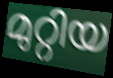
മുറ്റിയ